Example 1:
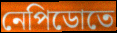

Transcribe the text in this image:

নেপিডোতে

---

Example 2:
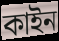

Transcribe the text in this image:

কাইন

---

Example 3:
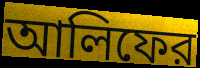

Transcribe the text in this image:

আলিফের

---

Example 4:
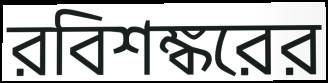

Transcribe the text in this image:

রবিশঙ্করের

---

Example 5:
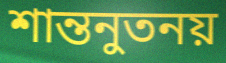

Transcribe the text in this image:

শান্তনুতনয়